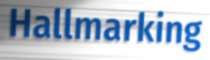
Hallmarking